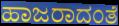
ಹಾಜರಾದಂತೆ